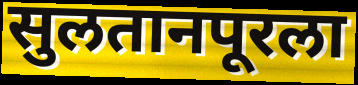
सुलतानपूरला